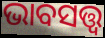
ଭାବସତ୍ତ୍ୱ